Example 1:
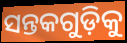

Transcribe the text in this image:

ସନ୍ତକଗୁଡ଼ିକୁ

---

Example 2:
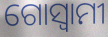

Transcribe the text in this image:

ଗୋସ୍ଵାମୀ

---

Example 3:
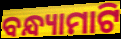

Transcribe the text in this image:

ବନ୍ଧ୍ୟାମାଟି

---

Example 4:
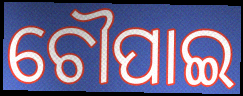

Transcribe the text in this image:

ଚୌପାଇ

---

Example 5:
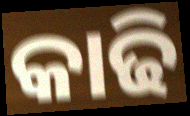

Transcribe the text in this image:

କାଢି